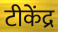
टीकेंद्र